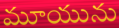
మూయును